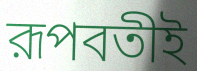
রূপবতীই